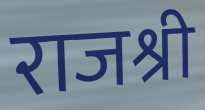
राजश्री